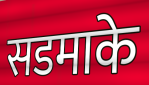
सडमाके